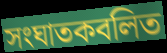
সংঘাতকবলিত